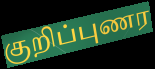
குறிப்புணர